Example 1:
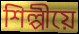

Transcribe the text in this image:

শিল্পীয়ে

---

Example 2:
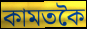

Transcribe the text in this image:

কামতকৈ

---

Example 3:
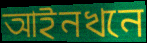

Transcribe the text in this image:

আইনখনে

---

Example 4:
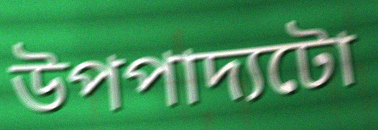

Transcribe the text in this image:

উপপাদ্যটো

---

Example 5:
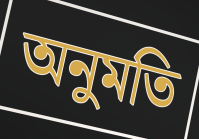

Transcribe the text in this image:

অনুমতি